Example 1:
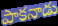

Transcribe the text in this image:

పాకనాడు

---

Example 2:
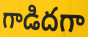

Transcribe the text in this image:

గాడిదగా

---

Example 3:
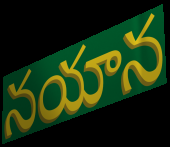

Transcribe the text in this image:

నయాన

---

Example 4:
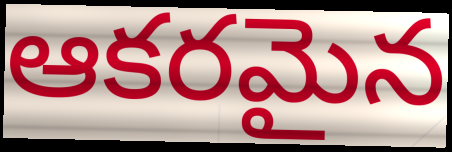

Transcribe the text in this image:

ఆకరమైన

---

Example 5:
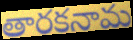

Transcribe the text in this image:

తారకనామ